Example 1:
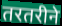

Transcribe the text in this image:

तरतरीने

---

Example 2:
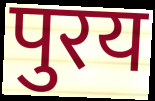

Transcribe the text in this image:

पुरय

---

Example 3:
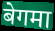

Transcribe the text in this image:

बेगमा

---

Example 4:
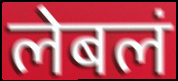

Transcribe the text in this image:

लेबलं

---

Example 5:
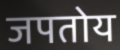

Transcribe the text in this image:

जपतोय